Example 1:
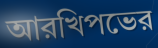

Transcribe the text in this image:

আরখিপভের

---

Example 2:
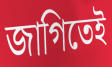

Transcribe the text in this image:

জাগিতেই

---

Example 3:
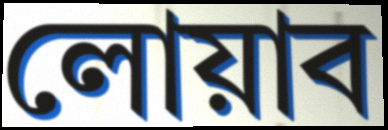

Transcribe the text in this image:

লোয়াব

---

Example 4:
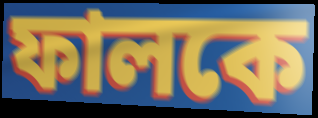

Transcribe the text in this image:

ফালকে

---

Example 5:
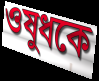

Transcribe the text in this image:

ওষুধকে